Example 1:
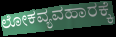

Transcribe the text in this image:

ಲೋಕವ್ಯವಹಾರಕ್ಕೆ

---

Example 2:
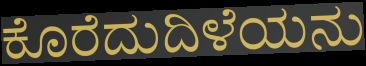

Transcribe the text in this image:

ಕೊರೆದುದಿಳೆಯನು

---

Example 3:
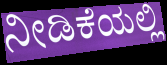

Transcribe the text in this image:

ನೀಡಿಕೆಯಲ್ಲಿ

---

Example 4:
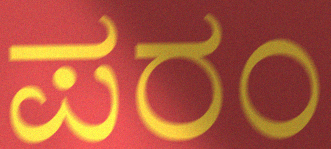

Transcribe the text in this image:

ಪರಂ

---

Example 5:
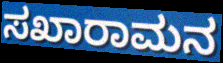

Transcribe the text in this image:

ಸಖಾರಾಮನ